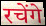
रचेंगे